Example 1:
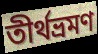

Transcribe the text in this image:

তীৰ্থভ্ৰমণ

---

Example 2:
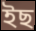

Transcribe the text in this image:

ইছ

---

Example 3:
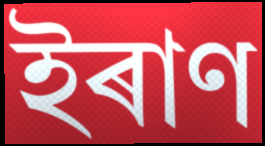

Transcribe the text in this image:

ইৰাণ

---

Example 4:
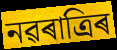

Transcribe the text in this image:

নৱৰাত্ৰিৰ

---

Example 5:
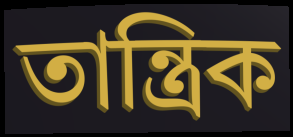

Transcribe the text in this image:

তান্ত্ৰিক